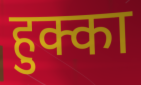
हुक्का